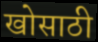
खोसाठी